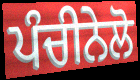
ਪੰਚੀਨੇਲੋ